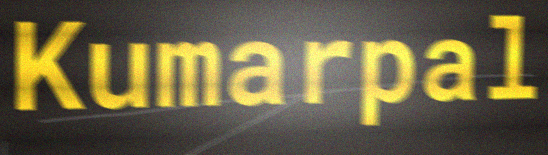
Kumarpal